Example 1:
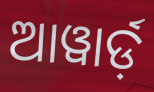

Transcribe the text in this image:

ଆୱାର୍ଡ଼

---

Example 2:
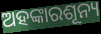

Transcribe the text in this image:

ଅହଙ୍କାରଶୂନ୍ୟ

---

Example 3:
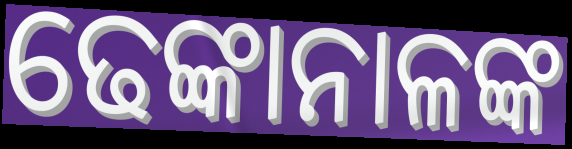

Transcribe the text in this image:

ଢେଙ୍କାନାଳଙ୍କ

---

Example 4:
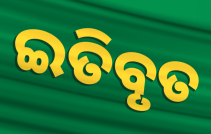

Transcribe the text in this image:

ଇତିବୃତ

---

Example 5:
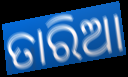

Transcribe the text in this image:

ତାରିଆ